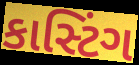
કાસ્ટિંગ